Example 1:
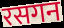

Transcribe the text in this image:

रसगन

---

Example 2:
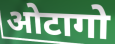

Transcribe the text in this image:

ओटागो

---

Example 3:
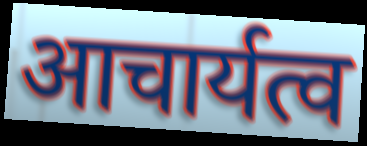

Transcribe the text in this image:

आचार्यत्व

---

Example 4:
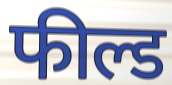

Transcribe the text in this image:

फील्‍ड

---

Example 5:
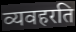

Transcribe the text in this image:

व्यवहरति